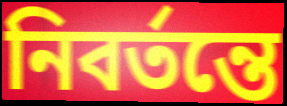
নিবর্তন্তে